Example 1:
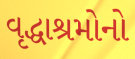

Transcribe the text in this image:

વૃદ્ધાશ્રમોનો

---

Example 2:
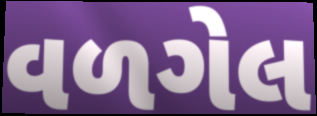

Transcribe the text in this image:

વળગેલ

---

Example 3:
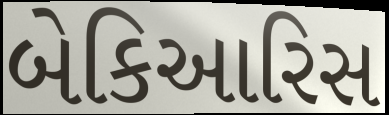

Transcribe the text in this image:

બેકિઆરિસ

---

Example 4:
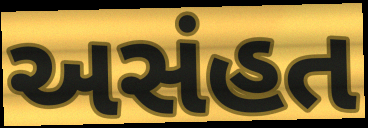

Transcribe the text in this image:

અસંહત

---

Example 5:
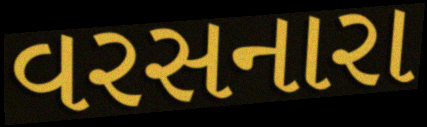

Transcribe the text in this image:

વરસનારા